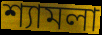
শ্যামলা